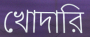
খোদারি